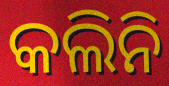
କଲିନି